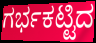
ಗರ್ಭಕಟ್ಟಿದ